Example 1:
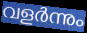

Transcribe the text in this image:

വളർന്നും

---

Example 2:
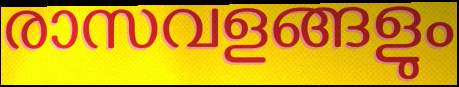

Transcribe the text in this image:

രാസവളങ്ങളും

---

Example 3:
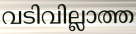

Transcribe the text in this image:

വടിവില്ലാത്ത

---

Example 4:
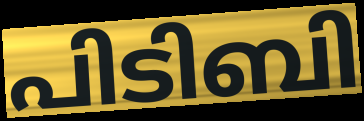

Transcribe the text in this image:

പിടിബി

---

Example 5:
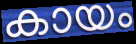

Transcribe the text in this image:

കായം